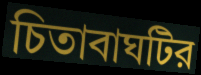
চিতাবাঘটির